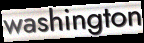
washington